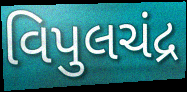
વિપુલચંદ્ર